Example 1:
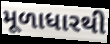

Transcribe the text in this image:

મૂળાધારથી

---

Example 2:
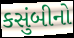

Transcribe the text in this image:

કસુંબીનો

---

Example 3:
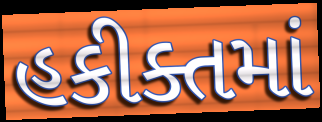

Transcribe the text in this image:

હકીક્તમાં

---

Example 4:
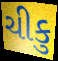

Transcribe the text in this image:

ચીકુ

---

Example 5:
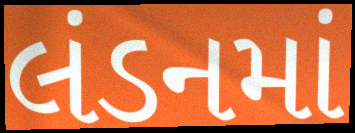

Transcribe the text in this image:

લંડનમાં